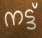
നട്ട്